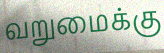
வறுமைக்கு